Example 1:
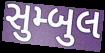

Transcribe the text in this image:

સુમ્બુલ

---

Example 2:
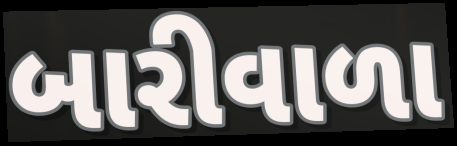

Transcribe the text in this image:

બારીવાળા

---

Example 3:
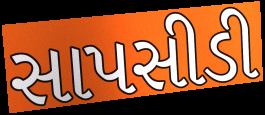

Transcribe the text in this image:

સાપસીડી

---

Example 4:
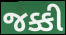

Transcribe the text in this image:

જક્કી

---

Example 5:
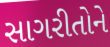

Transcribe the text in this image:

સાગરીતોને